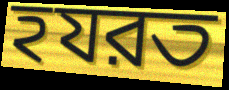
হযরত